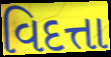
વિદત્તા